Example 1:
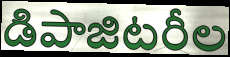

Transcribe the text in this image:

డిపాజిటరీల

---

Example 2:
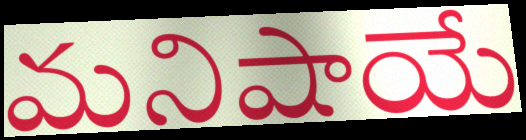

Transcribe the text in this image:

మనిషాయే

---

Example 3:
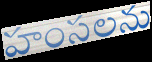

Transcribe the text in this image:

హంసలను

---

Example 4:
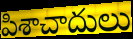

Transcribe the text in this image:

పిశాచాదులు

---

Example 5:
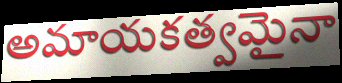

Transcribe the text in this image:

అమాయకత్వమైనా